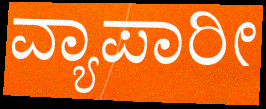
ವ್ಯಾಪಾರೀ